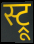
स्ट्रू